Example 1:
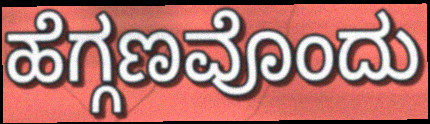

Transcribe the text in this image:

ಹೆಗ್ಗಣವೊಂದು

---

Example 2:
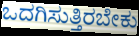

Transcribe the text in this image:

ಒದಗಿಸುತ್ತಿರಬೇಕು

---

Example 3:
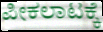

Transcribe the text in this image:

ಪೀಕಲಾಟಕ್ಕೆ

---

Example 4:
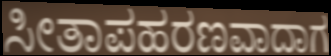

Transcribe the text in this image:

ಸೀತಾಪಹರಣವಾದಾಗ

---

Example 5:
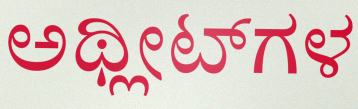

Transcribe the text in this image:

ಅಥ್ಲೀಟ್‌ಗಳ